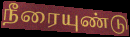
நீரையுண்டு